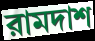
রামদাশ